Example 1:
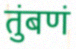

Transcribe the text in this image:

तुंबणं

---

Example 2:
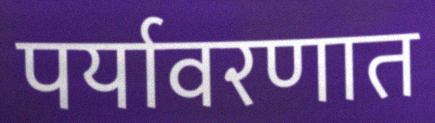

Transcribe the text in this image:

पर्यावरणात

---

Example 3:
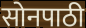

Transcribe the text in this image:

सोनपाठी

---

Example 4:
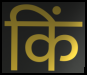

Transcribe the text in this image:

किं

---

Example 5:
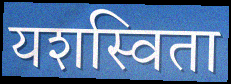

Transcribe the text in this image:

यशस्विता